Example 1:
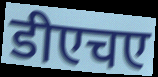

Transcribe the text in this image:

डीएचए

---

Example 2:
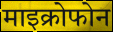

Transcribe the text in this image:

माइक्रोफोन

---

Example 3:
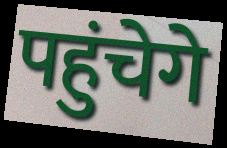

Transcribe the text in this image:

पहुंचेगे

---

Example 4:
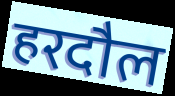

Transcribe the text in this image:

हरदौल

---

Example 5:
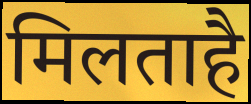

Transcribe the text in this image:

मिलताहै